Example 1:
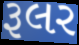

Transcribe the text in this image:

રૂલર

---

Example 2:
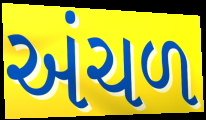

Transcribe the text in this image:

અંચળ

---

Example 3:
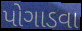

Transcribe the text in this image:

પોગાડવા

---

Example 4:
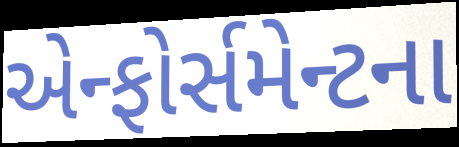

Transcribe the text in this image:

એન્ફોર્સમેન્ટના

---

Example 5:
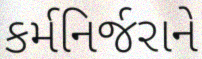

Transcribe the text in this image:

કર્મનિર્જરાને